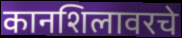
कानशिलावरचे